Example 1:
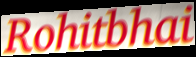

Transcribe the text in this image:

Rohitbhai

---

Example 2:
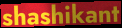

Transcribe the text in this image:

shashikant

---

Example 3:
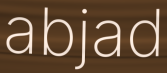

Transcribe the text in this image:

abjad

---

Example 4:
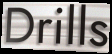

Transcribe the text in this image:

Drills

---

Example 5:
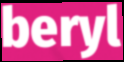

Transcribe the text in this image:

beryl